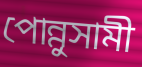
পোন্নুসামী